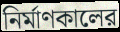
নির্মাণকালের